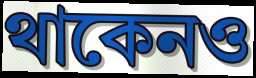
থাকেনও